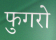
फुगरो